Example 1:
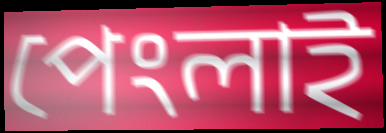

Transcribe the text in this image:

পেংলাই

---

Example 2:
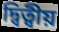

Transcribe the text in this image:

দ্বিত্বীয়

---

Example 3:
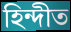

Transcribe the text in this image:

হিন্দীত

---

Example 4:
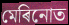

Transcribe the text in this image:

মেৰিনোত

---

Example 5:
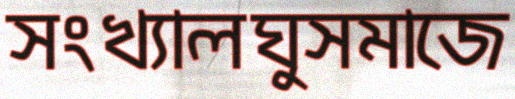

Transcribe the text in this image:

সংখ্যালঘুসমাজে